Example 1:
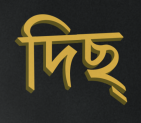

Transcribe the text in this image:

দিছ্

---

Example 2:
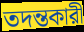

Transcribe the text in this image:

তদন্তকারী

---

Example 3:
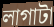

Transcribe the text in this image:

লাগাটা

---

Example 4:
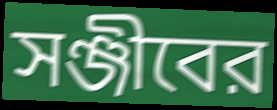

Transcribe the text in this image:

সঞ্জীবের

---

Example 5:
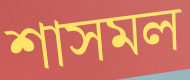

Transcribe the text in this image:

শাসমল